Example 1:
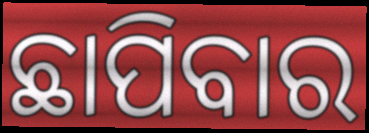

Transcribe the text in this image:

ଛାପିବାର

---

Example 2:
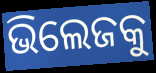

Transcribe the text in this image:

ଭିଲେଜକୁ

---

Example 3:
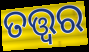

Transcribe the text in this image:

ତତ୍ତ୍ବର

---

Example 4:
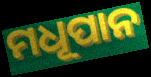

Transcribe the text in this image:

ମଧୂପାନ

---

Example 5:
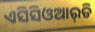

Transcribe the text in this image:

ଏସିସିଓଆର୍‌ଡି